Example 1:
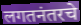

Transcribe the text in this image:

लगतनंतरचे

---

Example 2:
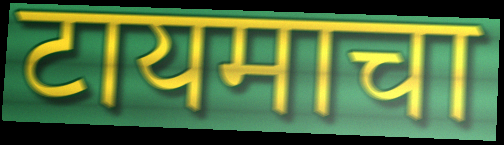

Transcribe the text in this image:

टायमाचा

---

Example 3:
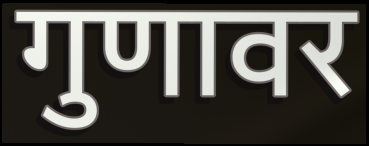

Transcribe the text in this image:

गुणावर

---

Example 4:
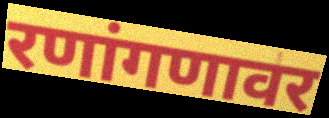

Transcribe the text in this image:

रणांगणावर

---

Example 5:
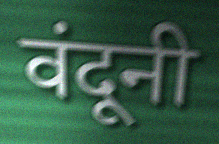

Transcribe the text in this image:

वंदूनी